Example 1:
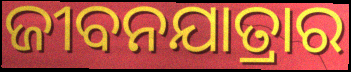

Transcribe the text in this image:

ଜୀବନଯାତ୍ରାର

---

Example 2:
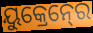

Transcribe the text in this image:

ୟୁକ୍ରେନ୍‍ରେ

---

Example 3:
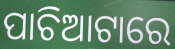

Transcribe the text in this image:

ପାଚିଆଟାରେ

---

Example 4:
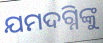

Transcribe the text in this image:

ଯମଦଗ୍ନିଙ୍କୁ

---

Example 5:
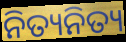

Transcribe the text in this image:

ନିତ୍ୟନିତ୍ୟ